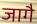
जागै